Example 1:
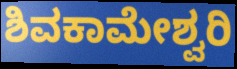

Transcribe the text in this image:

ಶಿವಕಾಮೇಶ್ವರಿ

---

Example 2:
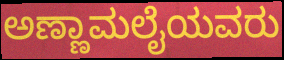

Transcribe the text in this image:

ಅಣ್ಣಾಮಲೈಯವರು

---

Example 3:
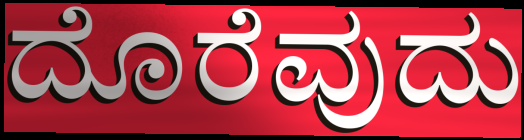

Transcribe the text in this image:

ದೊರೆವುದು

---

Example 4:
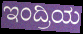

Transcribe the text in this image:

ಇಂದ್ರಿಯ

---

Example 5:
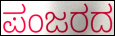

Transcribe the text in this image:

ಪಂಜರದ